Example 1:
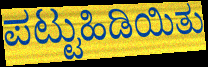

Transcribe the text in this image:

ಪಟ್ಟುಹಿಡಿಯಿತು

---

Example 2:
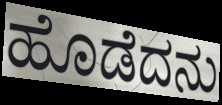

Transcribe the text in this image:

ಹೊಡೆದನು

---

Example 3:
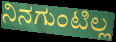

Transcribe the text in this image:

ನಿನಗುಂಟಿಲ್ಲ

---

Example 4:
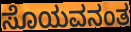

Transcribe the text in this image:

ಸೊಯವನಂತ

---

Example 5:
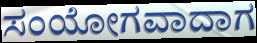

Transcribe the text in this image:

ಸಂಯೋಗವಾದಾಗ